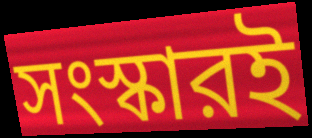
সংস্কারই